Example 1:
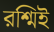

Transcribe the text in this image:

রশ্মিই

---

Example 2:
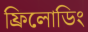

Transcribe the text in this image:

ফ্রিলোডিং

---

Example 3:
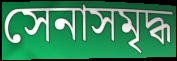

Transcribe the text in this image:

সেনাসমৃদ্ধ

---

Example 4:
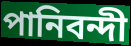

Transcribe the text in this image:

পানিবন্দী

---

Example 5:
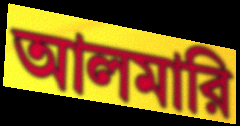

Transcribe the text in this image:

আলমারি